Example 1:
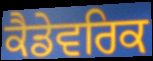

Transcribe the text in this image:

ਕੈਡੇਵਰਿਕ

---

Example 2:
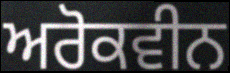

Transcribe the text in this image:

ਅਰੋਕਵੀਨ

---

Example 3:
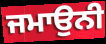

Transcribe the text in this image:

ਜਮਾਉਨੀ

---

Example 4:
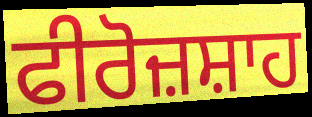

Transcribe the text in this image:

ਫੀਰੋਜ਼ਸ਼ਾਹ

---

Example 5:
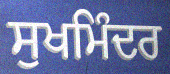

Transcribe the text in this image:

ਸੁਖਮਿੰਦਰ